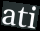
ati